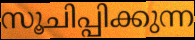
സൂചിപ്പിക്കുന്ന